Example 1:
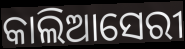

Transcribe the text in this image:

କାଲିଆସେରୀ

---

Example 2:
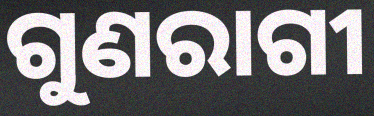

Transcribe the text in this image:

ଗୁଣରାଗୀ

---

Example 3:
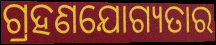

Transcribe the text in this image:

ଗ୍ରହଣଯୋଗ୍ୟତାର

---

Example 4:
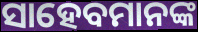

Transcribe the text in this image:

ସାହେବମାନଙ୍କ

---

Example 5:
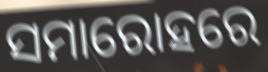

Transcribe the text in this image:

ସମାରୋହରେ